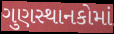
ગુણસ્થાનકોમાં